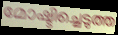
മോഷ്ടിച്ചെടുത്ത